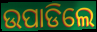
ଉପାଡିଲେ